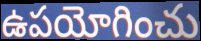
ఉపయోగించు